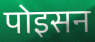
पोइसन